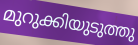
മുറുക്കിയുടുത്തു